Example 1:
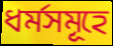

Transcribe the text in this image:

ধর্মসমূহে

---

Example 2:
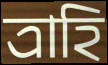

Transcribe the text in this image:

ত্রাহি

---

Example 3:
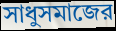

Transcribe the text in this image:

সাধুসমাজের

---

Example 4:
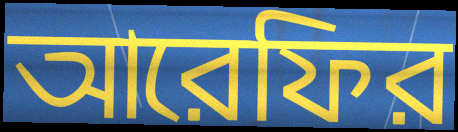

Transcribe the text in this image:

আরেফির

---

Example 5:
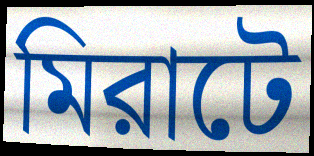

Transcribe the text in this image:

মিরাটে